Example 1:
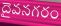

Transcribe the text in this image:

దైవనగరం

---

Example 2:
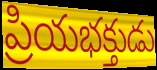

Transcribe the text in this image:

ప్రియభక్తుడు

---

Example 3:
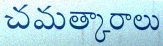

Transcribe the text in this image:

చమత్కారాలు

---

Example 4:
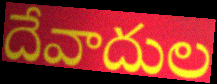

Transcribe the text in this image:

దేవాదుల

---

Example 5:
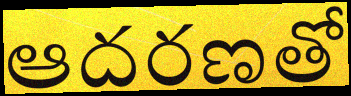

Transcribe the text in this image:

ఆదరణతో